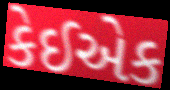
કેઈએક